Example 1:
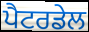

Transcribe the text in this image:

ਪੈਟਰਡੇਲ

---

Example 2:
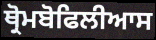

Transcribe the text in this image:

ਥ੍ਰੋਮਬੋਫਿਲੀਆਸ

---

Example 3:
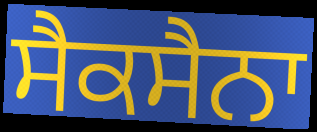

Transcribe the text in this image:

ਸੈਕਸੈਨਾ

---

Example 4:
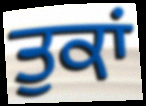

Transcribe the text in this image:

ਤੁਕਾਂ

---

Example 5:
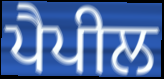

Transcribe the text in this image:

ਪੈਪੀਲ